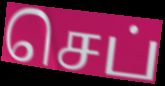
செப்